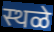
स्थळे